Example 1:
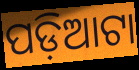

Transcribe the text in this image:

ପଡ଼ିଆଟା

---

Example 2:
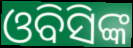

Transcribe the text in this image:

ଓବିସିଙ୍କ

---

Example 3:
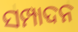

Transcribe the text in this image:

ସମ୍ପାଦନ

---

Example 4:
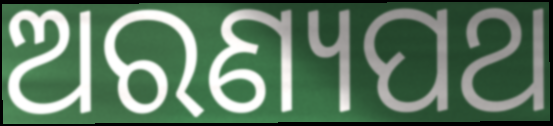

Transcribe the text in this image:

ଅରଣ୍ୟପଥ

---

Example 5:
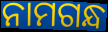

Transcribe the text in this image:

ନାମଗନ୍ଧ